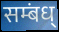
सम्बंध्